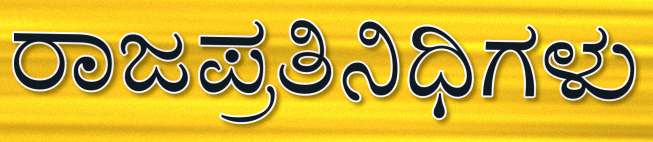
ರಾಜಪ್ರತಿನಿಧಿಗಳು